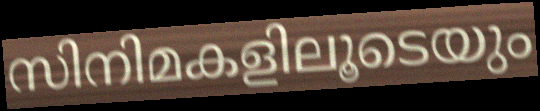
സിനിമകളിലൂടെയും